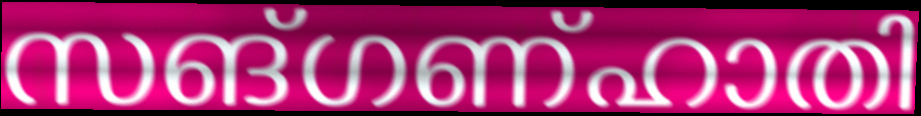
സങ്ഗണ്ഹാതി